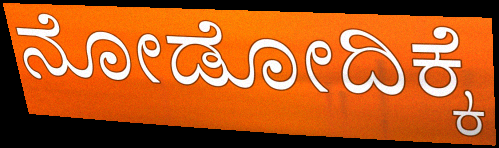
ನೋಡೋದಿಕ್ಕೆ